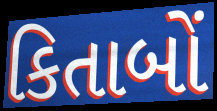
કિતાબોં